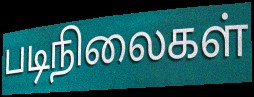
படிநிலைகள்